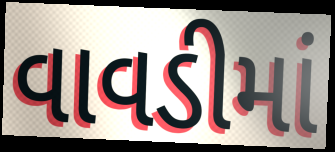
વાવડીમાં